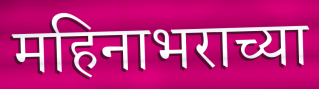
महिनाभराच्या